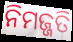
ନିମଜ୍ଜତି